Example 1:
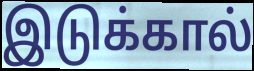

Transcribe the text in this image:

இடுக்கால்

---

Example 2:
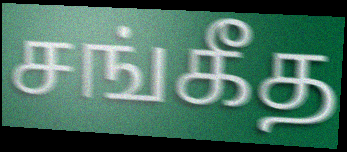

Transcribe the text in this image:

சங்கீத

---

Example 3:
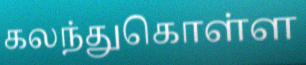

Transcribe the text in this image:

கலந்துகொள்ள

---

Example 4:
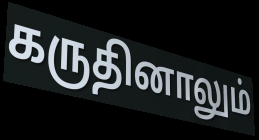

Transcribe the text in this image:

கருதினாலும்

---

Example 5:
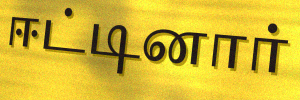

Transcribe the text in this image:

ஈட்டினார்